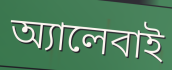
অ্যালেবাই